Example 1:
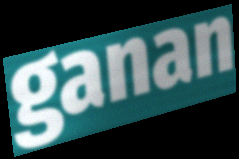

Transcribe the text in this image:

ganan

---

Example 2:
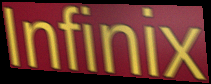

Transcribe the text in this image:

Infinix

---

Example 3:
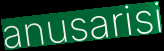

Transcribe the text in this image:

anusarisi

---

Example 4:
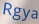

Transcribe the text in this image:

Rgya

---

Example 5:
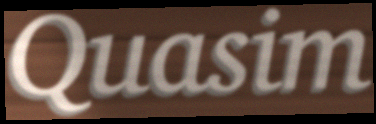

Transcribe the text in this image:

Quasim